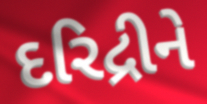
દરિદ્રીને